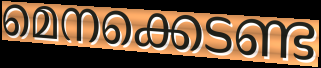
മെനക്കെടണ്ട